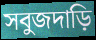
সবুজদাড়ি